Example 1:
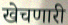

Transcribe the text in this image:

खेचणारी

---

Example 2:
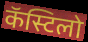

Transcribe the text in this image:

कॅस्टिलो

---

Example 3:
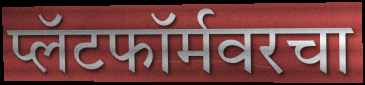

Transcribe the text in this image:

प्लॅटफॉर्मवरचा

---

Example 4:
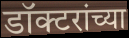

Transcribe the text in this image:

डॉक्‍टरांच्या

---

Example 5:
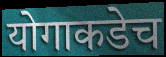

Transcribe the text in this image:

योगाकडेच